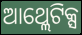
ଆଥ୍ଲେଟିକ୍ସ